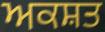
ਅਕਸ਼ਤ